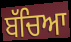
ਬੱਚਿਆ